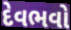
દેવભવો